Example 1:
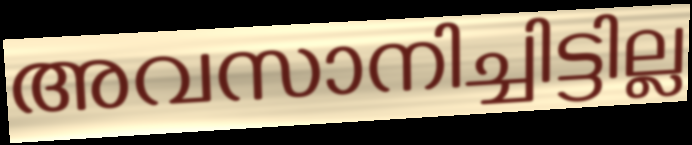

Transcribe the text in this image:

അവസാനിച്ചിട്ടില്ല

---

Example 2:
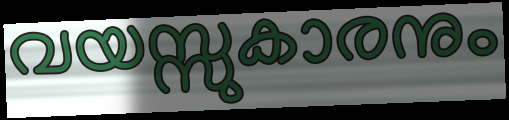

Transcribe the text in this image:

വയസ്സുകാരനും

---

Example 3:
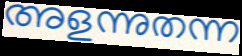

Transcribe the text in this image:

അളന്നുതന്ന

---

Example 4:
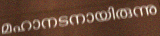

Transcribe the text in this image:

മഹാനടനായിരുന്നു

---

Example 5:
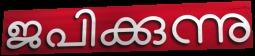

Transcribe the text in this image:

ജപിക്കുന്നു